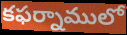
కఫర్నాములో